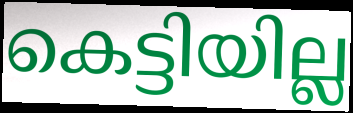
കെട്ടിയില്ല